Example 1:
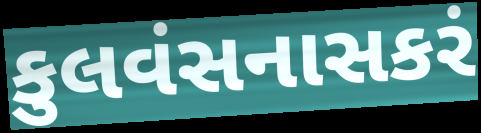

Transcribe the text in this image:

કુલવંસનાસકરં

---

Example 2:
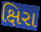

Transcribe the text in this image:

ક્ષિરા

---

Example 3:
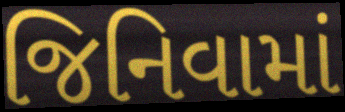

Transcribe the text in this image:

જિનિવામાં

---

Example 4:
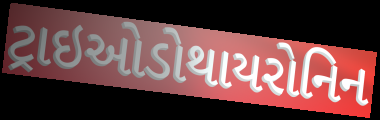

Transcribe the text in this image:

ટ્રાઇઓડોથાયરોનિન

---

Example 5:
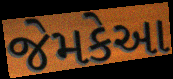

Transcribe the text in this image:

જેમકેઆ